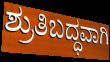
ಶ್ರುತಿಬದ್ಧವಾಗಿ